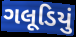
ગલૂડિયું